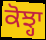
ਕੋਝ੍ਹਾ